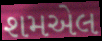
શમએલ